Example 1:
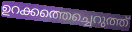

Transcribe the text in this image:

ഉറക്കത്തെച്ചെറുത്ത്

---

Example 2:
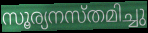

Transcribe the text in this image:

സൂര്യനസ്തമിച്ചു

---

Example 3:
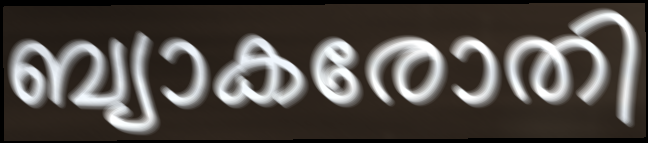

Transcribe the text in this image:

ബ്യാകരോതി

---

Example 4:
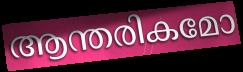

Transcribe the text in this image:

ആന്തരികമോ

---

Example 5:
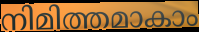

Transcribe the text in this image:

നിമിത്തമാകാം